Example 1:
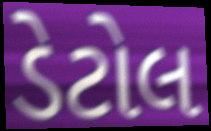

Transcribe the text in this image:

ડેટોલ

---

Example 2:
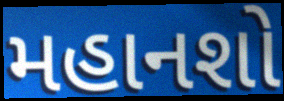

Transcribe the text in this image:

મહાનશો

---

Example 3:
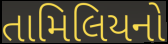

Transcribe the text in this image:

તામિલિયનો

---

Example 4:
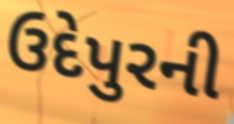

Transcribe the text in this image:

ઉદેપુરની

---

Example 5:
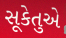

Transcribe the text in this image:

સૂકેતુએ